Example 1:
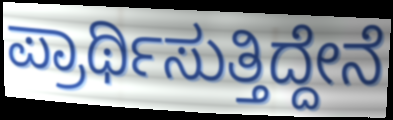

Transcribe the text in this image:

ಪ್ರಾರ್ಥಿಸುತ್ತಿದ್ದೇನೆ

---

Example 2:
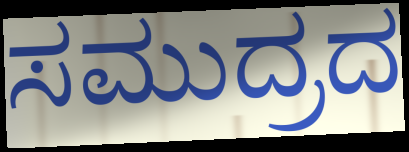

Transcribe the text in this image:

ಸಮುದ್ರದ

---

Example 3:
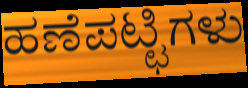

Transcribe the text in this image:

ಹಣೆಪಟ್ಟಿಗಳು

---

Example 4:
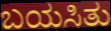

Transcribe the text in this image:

ಬಯಸಿತು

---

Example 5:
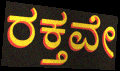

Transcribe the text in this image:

ರಕ್ತವೇ